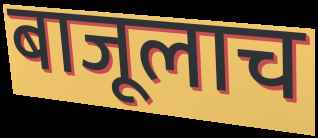
बाजूलाच